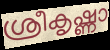
ശ്രീകൃഷ്ണാ